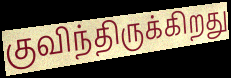
குவிந்திருக்கிறது